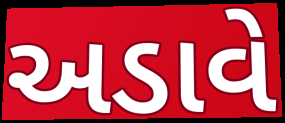
અડાવે